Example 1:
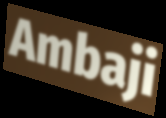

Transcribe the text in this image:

Ambaji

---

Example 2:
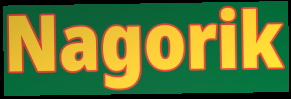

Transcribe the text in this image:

Nagorik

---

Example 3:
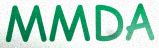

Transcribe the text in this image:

MMDA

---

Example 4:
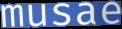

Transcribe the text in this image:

musae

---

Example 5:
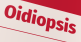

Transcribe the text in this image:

Oidiopsis